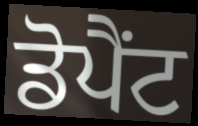
ਡੋਪੈਂਟ